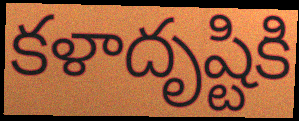
కళాదృష్టికి